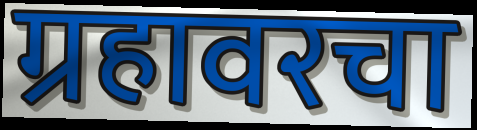
ग्रहावरचा